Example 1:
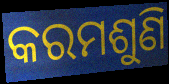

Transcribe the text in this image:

କରମଶୁଣି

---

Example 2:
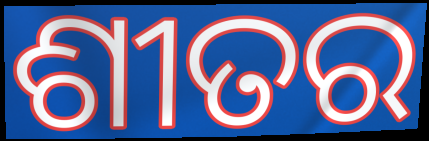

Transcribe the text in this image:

ଶୀତର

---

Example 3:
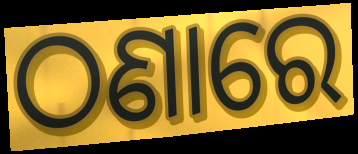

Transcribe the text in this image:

ଠଣାରେ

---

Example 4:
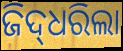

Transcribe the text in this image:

ଜିଦ୍‌ଧରିଲା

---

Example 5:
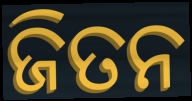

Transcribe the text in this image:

ଜିତନ